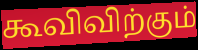
கூவிவிற்கும்